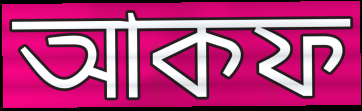
আকফ